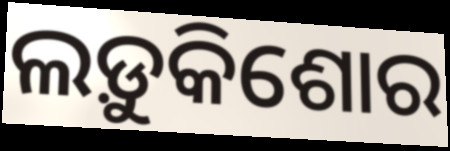
ଲଡ଼ୁକିଶୋର